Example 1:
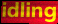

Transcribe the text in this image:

idling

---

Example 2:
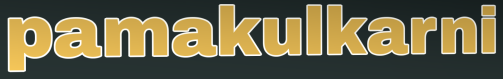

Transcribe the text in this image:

pamakulkarni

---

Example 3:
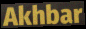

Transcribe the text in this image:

Akhbar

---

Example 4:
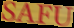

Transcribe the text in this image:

SAFU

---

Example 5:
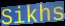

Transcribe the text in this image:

Sikhs